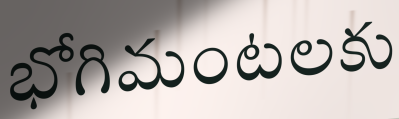
భోగిమంటలకు